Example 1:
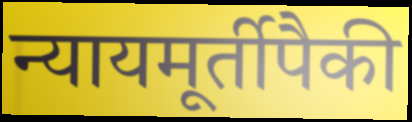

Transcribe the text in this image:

न्यायमूर्तीपैकी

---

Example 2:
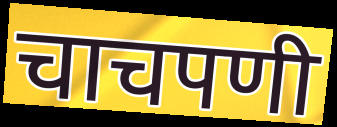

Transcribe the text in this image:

चाचपणी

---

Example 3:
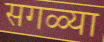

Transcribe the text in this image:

सगळ्या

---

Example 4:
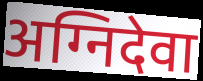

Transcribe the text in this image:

अग्निदेवा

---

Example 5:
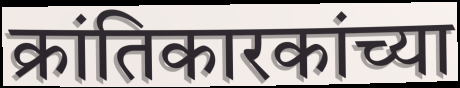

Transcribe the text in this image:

क्रांतिकारकांच्या